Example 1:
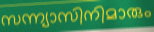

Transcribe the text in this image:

സന്ന്യാസിനിമാരും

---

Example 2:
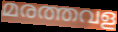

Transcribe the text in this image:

മരത്തവള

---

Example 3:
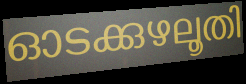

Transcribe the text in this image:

ഓടക്കുഴലൂതി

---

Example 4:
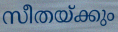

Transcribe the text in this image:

സീതയ്ക്കും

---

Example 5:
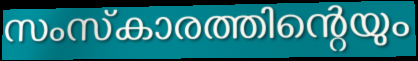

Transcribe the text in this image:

സംസ്‌കാരത്തിന്റെയും